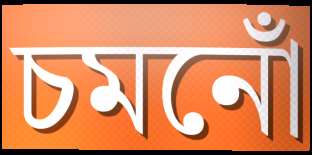
চমনোঁ